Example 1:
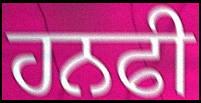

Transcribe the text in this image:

ਹਨਫੀ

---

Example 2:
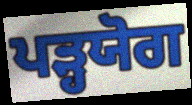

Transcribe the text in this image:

ਪੜ੍ਹਯੋਗ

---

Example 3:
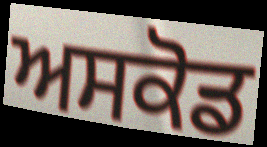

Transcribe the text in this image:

ਅਸਕੋਡ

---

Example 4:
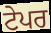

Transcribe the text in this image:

ਟੇਪਰ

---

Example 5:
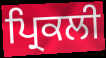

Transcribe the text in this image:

ਪ੍ਰਿਕਲੀ